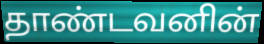
தாண்டவனின்